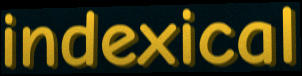
indexical